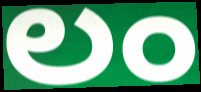
లం